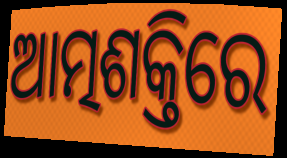
ଆତ୍ମଶକ୍ତିରେ